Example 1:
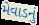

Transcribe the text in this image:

મેવાડનું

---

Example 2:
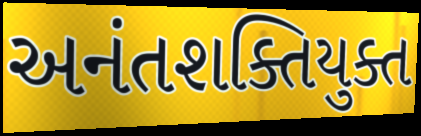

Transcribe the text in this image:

અનંતશક્તિયુક્ત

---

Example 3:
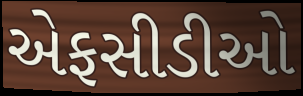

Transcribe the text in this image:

એફસીડીઓ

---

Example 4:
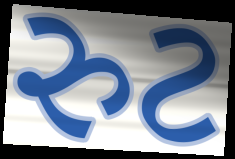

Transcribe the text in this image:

રુટ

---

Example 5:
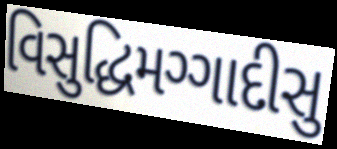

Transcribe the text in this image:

વિસુદ્ધિમગ્ગાદીસુ